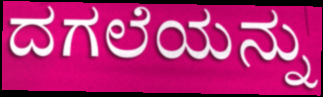
ದಗಲೆಯನ್ನು